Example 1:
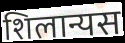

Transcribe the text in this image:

शिलान्यस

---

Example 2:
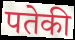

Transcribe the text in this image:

पतेकी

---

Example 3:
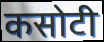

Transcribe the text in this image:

कसोटी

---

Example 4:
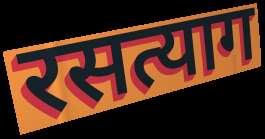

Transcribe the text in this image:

रसत्याग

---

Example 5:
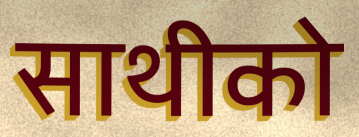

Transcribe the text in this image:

साथीको